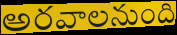
అరవాలనుంది